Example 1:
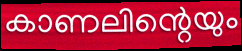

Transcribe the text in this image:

കാണലിന്റെയും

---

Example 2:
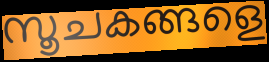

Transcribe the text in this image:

സൂചകങ്ങളെ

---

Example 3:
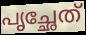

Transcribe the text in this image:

പൃച്ഛേത്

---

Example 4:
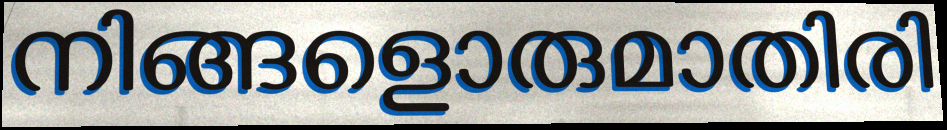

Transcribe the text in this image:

നിങ്ങളൊരുമാതിരി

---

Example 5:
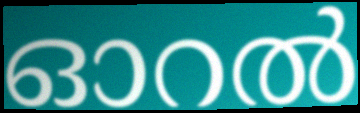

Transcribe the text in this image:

ഓറൽ